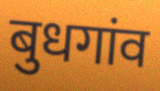
बुधगांव